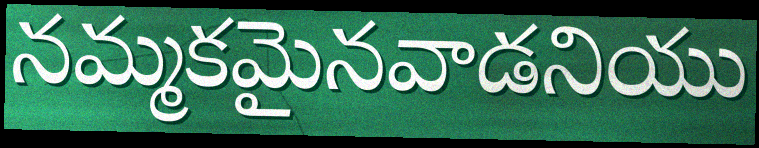
నమ్మకమైనవాడనియు